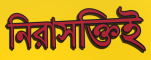
নিরাসক্তিই